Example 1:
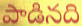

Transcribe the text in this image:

పాడినది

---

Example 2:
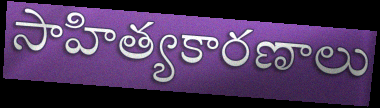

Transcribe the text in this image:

సాహిత్యకారణాలు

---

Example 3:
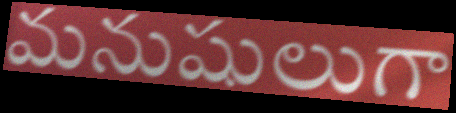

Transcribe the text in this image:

మనుషులుగా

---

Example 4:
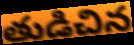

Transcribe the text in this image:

తుడిచిన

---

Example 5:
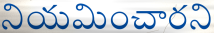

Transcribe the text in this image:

నియమించారని